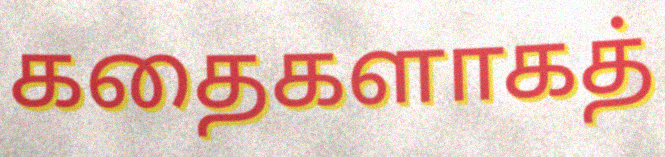
கதைகளாகத்